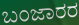
ಬಂಜಾರರ